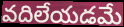
వదిలేయడమే